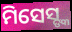
ମିସେସ୍ଙ୍କ